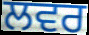
ਲਵਰ